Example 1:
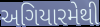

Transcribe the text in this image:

અગિયારમેથી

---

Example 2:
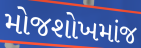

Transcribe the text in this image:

મોજશોખમાંજ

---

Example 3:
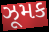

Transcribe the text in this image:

ઝૂમક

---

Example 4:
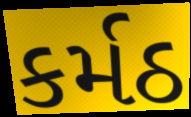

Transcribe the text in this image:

કર્મઠ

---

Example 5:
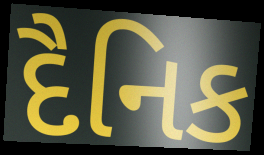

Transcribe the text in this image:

દૈનિક